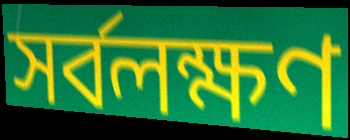
সর্বলক্ষণ